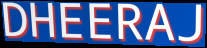
DHEERAJ